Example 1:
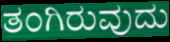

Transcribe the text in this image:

ತಂಗಿರುವುದು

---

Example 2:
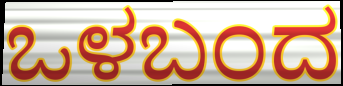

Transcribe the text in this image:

ಒಳಬಂದ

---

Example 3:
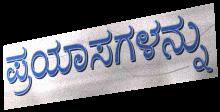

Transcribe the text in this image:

ಪ್ರಯಾಸಗಳನ್ನು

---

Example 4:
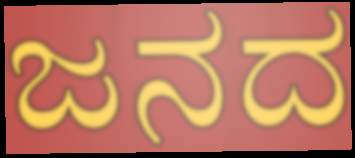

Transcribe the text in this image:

ಜನದ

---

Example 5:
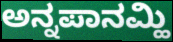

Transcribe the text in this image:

ಅನ್ನಪಾನಮ್ಹಿ